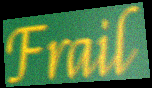
Frail